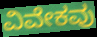
ವಿವೇಕವು